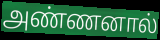
அண்ணனால்